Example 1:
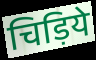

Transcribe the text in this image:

चिड़िये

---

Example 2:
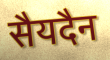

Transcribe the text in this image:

सैयदैन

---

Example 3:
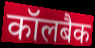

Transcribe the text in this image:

कॉलबैक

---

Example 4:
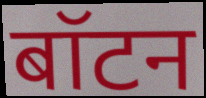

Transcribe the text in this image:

बॉटन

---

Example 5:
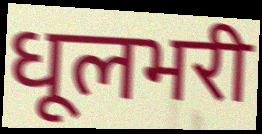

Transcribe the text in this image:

धूलभरी